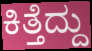
ಕಿತ್ತೆದ್ದು